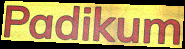
Padikum